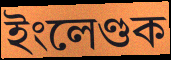
ইংলেণ্ডক